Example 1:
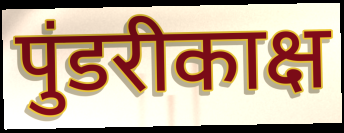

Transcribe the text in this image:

पुंडरीकाक्ष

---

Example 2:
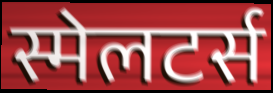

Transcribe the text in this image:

स्मेलटर्स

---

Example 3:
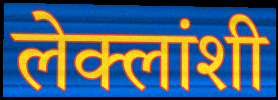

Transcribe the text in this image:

लेक्लांशी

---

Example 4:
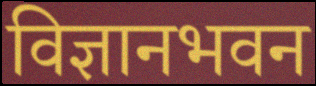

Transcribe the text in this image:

विज्ञानभवन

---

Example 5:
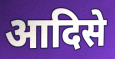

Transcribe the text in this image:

आदिसे